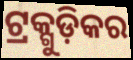
ଟ୍ରକ୍ଗୁଡ଼ିକର